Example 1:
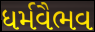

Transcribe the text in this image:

ધર્મવૈભવ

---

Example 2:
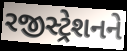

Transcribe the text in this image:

રજીસ્ટ્રેશનને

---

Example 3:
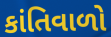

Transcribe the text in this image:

કાંતિવાળો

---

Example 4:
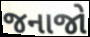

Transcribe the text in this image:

જનાજો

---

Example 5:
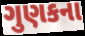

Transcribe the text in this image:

ગુણકના